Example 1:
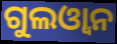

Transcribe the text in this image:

ଗୁଲଓ୍ୱାନ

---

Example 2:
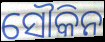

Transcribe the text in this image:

ସୌକିନ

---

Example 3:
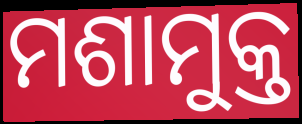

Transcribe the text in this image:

ମଶାମୁକ୍ତ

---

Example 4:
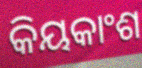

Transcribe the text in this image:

କିୟକାଂଶ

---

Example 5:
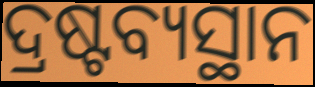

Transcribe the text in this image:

ଦ୍ରଷ୍ଟବ୍ୟସ୍ଥାନ